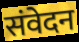
संवेदन